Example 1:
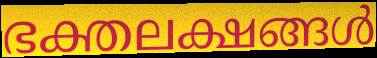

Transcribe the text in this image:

ഭക്തലക്ഷങ്ങൾ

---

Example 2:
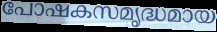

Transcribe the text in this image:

പോഷകസമൃദ്ധമായ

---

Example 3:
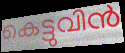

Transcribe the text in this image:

കെട്ടുവിൻ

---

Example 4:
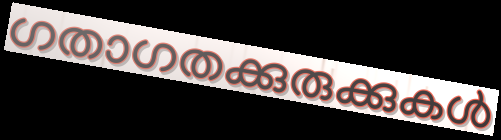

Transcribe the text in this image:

ഗതാഗതക്കുരുക്കുകൾ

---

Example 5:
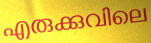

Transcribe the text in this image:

എരുക്കുവിലെ